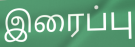
இரைப்பு